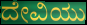
ದೇವಿಯು